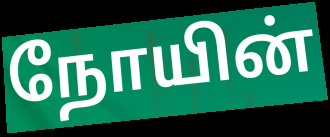
நோயின்